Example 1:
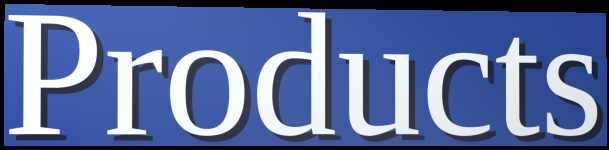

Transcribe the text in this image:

Products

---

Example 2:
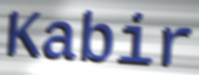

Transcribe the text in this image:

Kabir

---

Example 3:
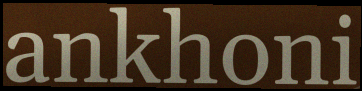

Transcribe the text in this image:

ankhoni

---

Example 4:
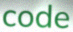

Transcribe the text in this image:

code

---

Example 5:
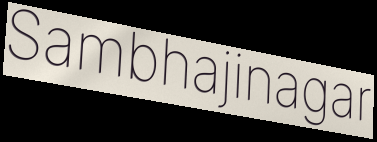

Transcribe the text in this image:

Sambhajinagar